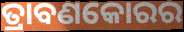
ତ୍ରାବଣକୋରର